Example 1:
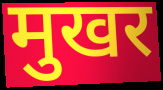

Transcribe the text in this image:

मुखर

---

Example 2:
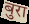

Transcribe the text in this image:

बुरा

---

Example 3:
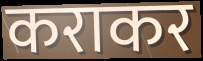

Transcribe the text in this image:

कराकर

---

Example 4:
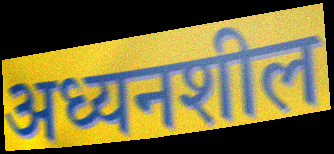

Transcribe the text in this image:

अध्यनशील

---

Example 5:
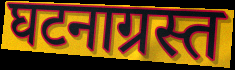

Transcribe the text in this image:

घटनाग्रस्त